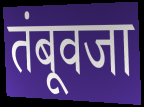
तंबूवजा